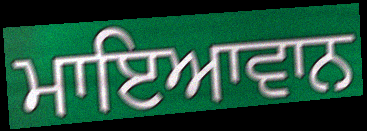
ਮਾਇਆਵਾਨ